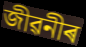
জীৱনীৰ